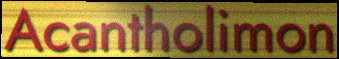
Acantholimon